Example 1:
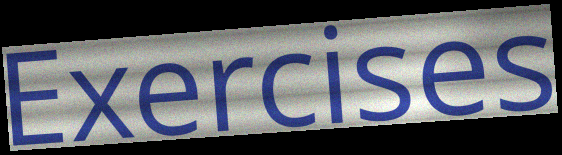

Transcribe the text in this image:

Exercises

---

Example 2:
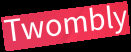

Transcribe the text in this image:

Twombly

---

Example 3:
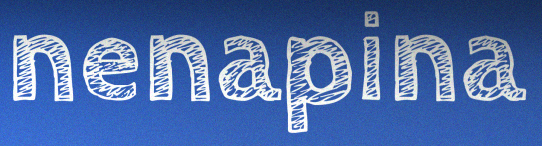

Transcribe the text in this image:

nenapina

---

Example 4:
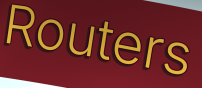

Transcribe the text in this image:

Routers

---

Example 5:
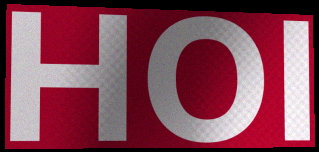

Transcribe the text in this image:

HOI